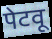
पेटवू